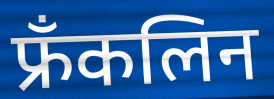
फ्रँकलिन